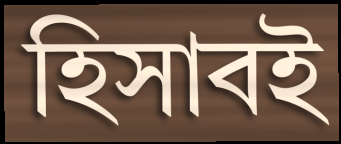
হিসাবই